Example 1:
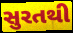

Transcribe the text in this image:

સુરતથી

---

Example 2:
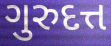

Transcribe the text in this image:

ગુરુદત્ત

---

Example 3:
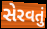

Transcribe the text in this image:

સેરવતું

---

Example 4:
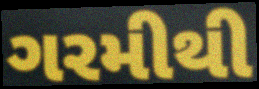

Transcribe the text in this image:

ગરમીથી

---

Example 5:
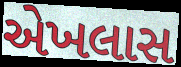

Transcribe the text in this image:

એખલાસ